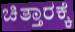
ಚಿತ್ತಾರಕ್ಕೆ